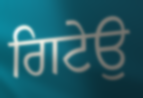
ਗਿਟੇਉ